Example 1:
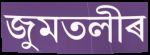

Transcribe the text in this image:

জুমতলীৰ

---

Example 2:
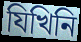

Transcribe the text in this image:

যিখিনি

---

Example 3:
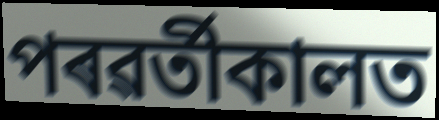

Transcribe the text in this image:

পৰৱৰ্তীকালত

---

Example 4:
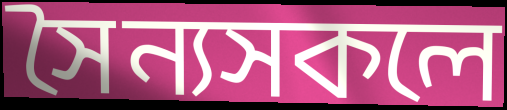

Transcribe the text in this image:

সৈন্যসকলে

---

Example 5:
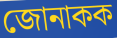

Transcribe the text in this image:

জোনাকক